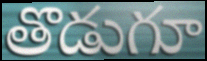
తొడుగూ